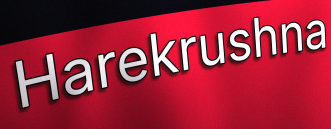
Harekrushna